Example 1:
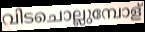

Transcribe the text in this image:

വിടചൊല്ലുമ്പോള്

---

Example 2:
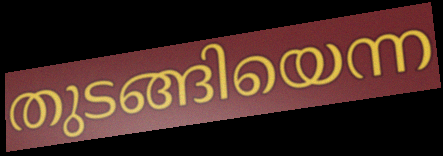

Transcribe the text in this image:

തുടങ്ങിയെന്ന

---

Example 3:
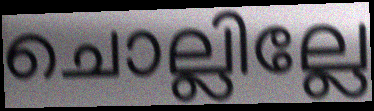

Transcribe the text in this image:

ചൊല്ലില്ലേ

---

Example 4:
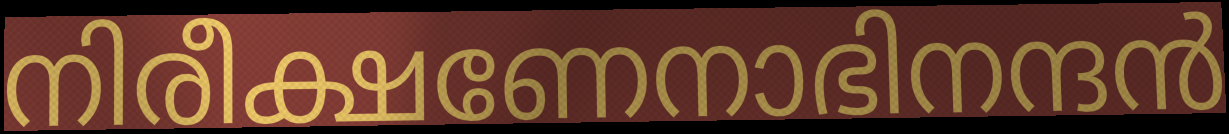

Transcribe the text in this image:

നിരീക്ഷണേനാഭിനന്ദൻ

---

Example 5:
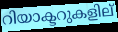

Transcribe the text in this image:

റിയാക്ടറുകളില്